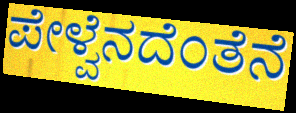
ಪೇಳ್ವೆನದೆಂತೆನೆ